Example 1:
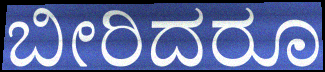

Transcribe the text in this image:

ಬೀರಿದರೂ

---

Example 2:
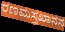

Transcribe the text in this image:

ರಣಮಸ್ತಖಾನನ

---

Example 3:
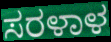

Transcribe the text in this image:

ಸರಳಾಳ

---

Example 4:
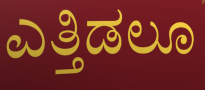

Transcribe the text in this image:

ಎತ್ತಿಡಲೂ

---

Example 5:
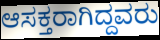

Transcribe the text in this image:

ಆಸಕ್ತರಾಗಿದ್ದವರು